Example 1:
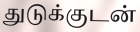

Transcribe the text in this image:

துடுக்குடன்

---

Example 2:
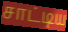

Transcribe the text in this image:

சாட்டிய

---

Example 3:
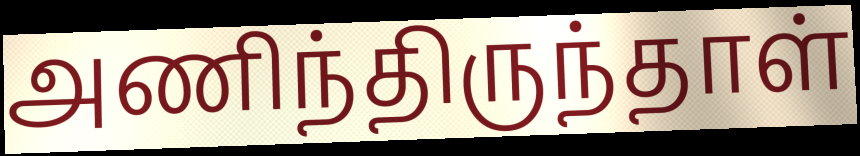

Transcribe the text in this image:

அணிந்திருந்தாள்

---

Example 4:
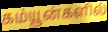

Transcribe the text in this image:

கம்யூன்களில்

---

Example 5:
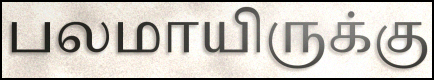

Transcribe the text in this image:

பலமாயிருக்கு